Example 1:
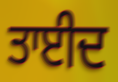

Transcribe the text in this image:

ਤਾਈਦ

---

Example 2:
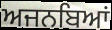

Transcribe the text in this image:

ਅਜਨਬਿਆਂ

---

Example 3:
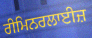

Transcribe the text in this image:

ਰੀਮਿਨਰਲਾਈਜ਼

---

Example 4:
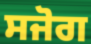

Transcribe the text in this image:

ਸਜੋਗ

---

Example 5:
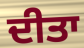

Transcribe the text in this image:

ਦੀਤਾ